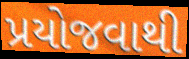
પ્રયોજવાથી